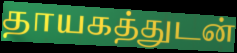
தாயகத்துடன்